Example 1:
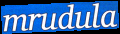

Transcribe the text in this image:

mrudula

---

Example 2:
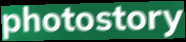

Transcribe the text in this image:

photostory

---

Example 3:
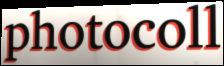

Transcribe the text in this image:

photocoll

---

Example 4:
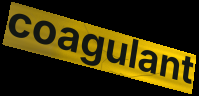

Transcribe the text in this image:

coagulant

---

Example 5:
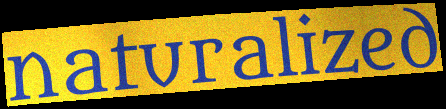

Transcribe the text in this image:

naturalized